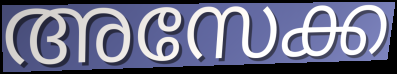
അസേക്ക